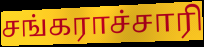
சங்கராச்சாரி